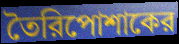
তৈরিপোশাকের